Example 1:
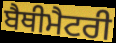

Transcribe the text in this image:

ਬੈਥੀਮੈਟਰੀ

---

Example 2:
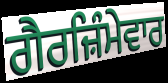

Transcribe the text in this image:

ਗੈਰਜ਼ਿੰਮੇਵਾਰ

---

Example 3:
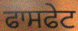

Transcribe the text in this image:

ਫਾਸਫੇਟ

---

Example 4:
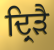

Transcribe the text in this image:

ਦ੍ਰਿੜੈ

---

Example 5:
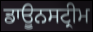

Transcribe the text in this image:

ਡਾਊਨਸਟ੍ਰੀਮ